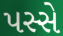
પસ્સે